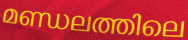
മണ്ഡലത്തിലെ